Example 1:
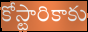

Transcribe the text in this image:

కోస్టారికాకు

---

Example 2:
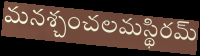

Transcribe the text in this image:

మనశ్చంచలమస్థిరమ్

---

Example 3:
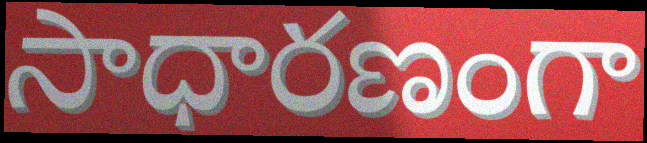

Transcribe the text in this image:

సాధారణంగా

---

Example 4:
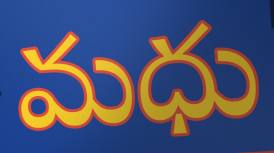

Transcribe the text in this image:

మధు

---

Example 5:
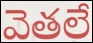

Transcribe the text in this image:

వెతలే